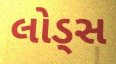
લોડ્સ